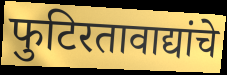
फुटिरतावाद्यांचे